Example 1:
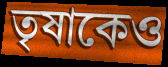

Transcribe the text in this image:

তৃষাকেও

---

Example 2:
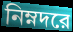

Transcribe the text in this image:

নিম্নদরে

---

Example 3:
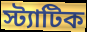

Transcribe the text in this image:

স্ট্যাটিক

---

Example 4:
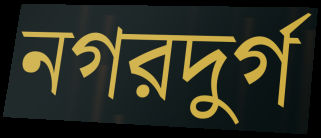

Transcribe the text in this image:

নগরদুর্গ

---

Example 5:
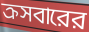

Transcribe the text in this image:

ক্রসবারের